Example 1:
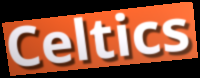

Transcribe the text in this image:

Celtics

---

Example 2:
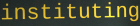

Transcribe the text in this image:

instituting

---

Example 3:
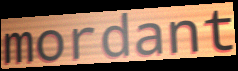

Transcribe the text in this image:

mordant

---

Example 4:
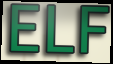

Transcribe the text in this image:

ELF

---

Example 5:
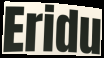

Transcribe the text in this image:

Eridu